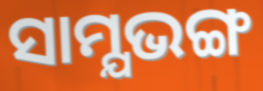
ସାମ୍ଯଭଙ୍ଗ